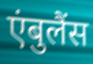
एंबुलैंस